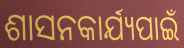
ଶାସନକାର୍ଯ୍ୟପାଇଁ